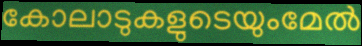
കോലാടുകളുടെയുംമേൽ